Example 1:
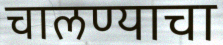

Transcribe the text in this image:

चालण्याचा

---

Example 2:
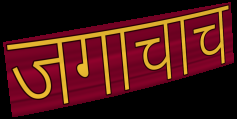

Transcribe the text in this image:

जगाचाच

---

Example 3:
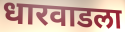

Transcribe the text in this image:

धारवाडला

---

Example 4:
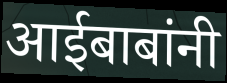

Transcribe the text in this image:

आईबाबांनी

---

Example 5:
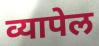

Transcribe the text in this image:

व्यापेल